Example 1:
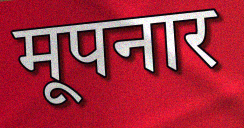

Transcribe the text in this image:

मूपनार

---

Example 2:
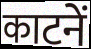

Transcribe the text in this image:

काटनें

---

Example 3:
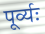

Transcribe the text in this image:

पूर्व्यः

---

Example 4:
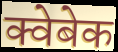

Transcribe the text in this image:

क्वेबेक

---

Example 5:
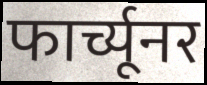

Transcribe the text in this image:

फार्च्यूनर